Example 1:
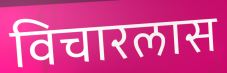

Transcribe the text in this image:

विचारलास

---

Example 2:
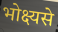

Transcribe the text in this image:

भोक्ष्यसे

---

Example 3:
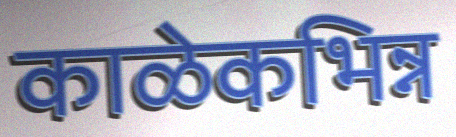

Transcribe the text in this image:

काळेकभिन्न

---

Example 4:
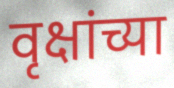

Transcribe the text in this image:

वृक्षांच्या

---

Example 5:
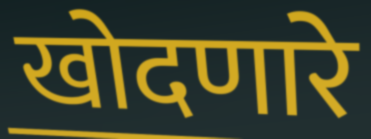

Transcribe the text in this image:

खोदणारे